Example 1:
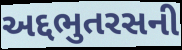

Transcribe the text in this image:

અદ્દભુતરસની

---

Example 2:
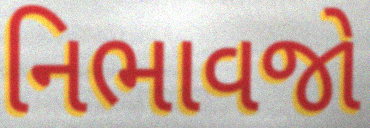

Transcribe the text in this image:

નિભાવજો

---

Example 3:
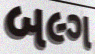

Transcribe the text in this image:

બલ્ગ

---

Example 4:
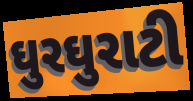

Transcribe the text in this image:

ઘુરઘુરાટી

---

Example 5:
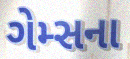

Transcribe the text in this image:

ગેમ્સના